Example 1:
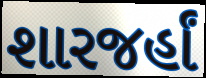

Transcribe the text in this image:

શારજર્હાં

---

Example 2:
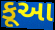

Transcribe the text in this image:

કૂઆ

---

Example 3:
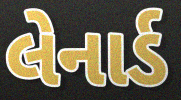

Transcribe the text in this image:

લેનાર્ડ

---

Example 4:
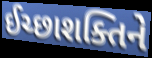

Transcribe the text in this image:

ઈચ્છાશક્તિને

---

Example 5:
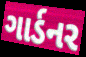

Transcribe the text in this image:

ગાર્ડનર